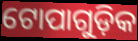
ଟୋପାଗୁଡ଼ିକ